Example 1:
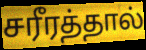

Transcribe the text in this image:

சரீரத்தால்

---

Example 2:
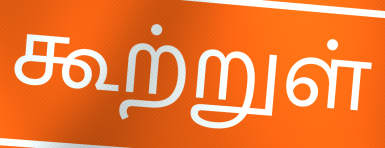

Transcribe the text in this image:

கூற்றுள்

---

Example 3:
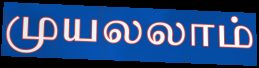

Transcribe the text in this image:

முயலலாம்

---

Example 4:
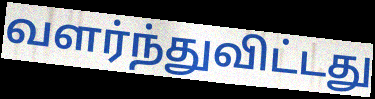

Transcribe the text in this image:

வளர்ந்துவிட்டது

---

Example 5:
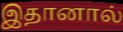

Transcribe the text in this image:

இதானால்